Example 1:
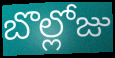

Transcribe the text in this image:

బొల్లోజు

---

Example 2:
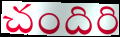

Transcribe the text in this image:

చందిరి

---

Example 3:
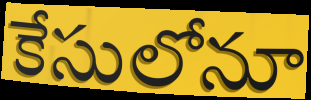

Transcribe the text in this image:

కేసులోనూ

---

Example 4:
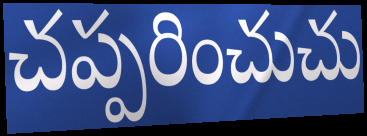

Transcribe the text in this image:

చప్పరించుచు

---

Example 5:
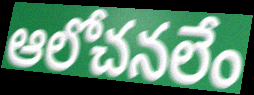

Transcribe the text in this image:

ఆలోచనలేం